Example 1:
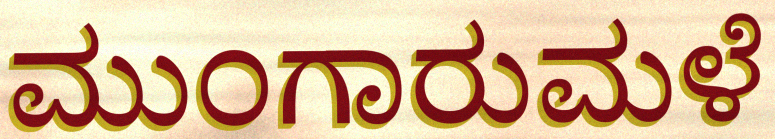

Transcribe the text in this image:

ಮುಂಗಾರುಮಳೆ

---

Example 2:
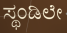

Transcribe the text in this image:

ಸ್ಥಂಡಿಲೇ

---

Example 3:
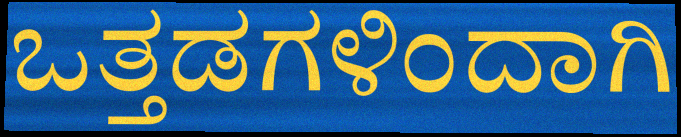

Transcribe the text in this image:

ಒತ್ತಡಗಳಿಂದಾಗಿ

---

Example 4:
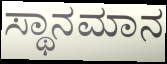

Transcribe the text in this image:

ಸ್ಥಾನಮಾನ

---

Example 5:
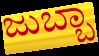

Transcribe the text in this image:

ಜುಬ್ಬಾ